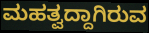
ಮಹತ್ವದ್ದಾಗಿರುವ